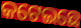
କଟେଇଛେ